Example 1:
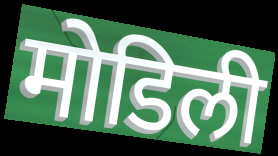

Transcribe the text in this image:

मोडिली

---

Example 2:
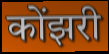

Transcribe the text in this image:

कोंझरी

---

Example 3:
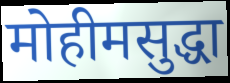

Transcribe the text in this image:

मोहीमसुद्धा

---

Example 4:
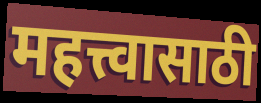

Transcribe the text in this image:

महत्त्वासाठी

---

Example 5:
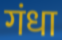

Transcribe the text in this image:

गंधा